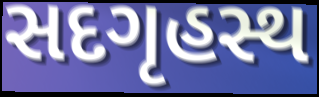
સદગૃહસ્થ